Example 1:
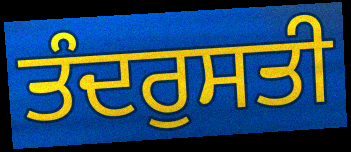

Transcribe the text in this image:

ਤੰਦਰੁਸਤੀ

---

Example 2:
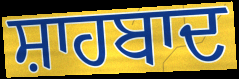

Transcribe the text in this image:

ਸ਼ਾਹਬਾਦ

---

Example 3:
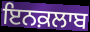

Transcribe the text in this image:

ਇਨਕ਼ਲਾਬ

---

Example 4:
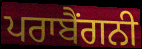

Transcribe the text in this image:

ਪਰਾਬੈਂਗਨੀ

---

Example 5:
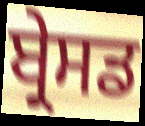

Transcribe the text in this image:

ਬ੍ਰੇਸਡ